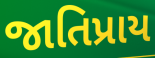
જાતિપ્રાય